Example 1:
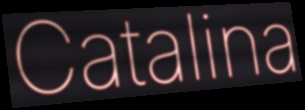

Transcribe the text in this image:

Catalina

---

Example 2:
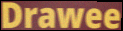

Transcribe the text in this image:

Drawee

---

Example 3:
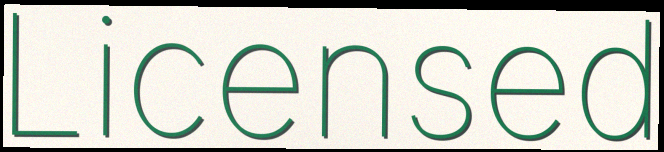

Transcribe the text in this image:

Licensed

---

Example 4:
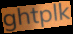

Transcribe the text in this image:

ghtplk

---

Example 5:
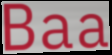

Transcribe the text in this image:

Baa